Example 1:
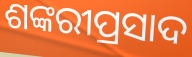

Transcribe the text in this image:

ଶଙ୍କରୀପ୍ରସାଦ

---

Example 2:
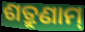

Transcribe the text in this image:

ଶତ୍ରୁଣାମ୍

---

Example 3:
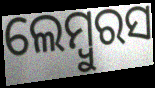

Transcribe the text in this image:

ଲେମ୍ବୁରସ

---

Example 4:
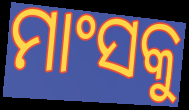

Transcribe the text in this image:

ମାଂସକୁ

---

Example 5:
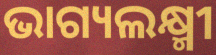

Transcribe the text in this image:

ଭାଗ୍ୟଲକ୍ଷ୍ମୀ